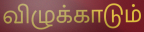
விழுக்காடும்